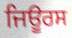
ਜਿਊਰਸ